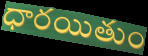
ధారయితుం